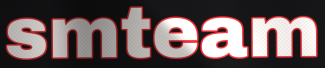
smteam